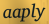
aaply